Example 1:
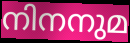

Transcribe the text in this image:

നിനനുമ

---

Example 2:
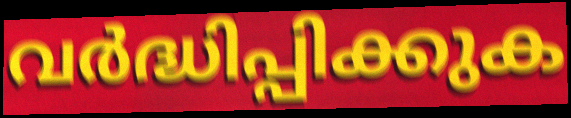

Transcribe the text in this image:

വർദ്ധിപ്പിക്കുക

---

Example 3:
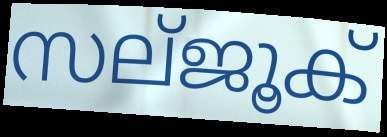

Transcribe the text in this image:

സല്ജൂക്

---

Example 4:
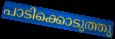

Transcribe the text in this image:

പാടിക്കൊടുത്തു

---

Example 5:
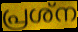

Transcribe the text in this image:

പ്രശ്‌ന